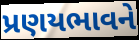
પ્રણયભાવને